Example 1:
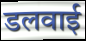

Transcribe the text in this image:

डलवाई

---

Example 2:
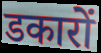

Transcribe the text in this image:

डकारों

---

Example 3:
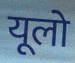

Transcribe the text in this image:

यूलो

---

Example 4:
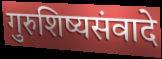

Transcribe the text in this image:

गुरुशिष्यसंवादे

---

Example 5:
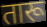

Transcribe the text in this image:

तारू